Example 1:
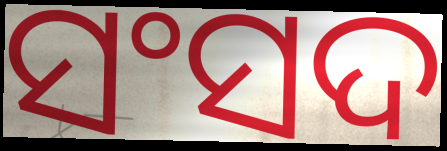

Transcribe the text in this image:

ସଂସଦ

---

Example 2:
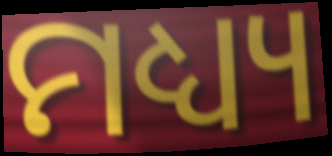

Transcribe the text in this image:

ମଧ୍ୟ୍ୟ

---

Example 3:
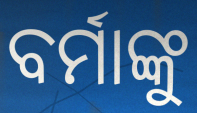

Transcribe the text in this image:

ବର୍ମାଙ୍କୁ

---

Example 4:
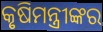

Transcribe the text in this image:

କୃଷିମନ୍ତ୍ରୀଙ୍କର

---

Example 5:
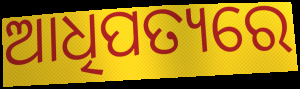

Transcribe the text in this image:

ଆଧିପତ୍ୟରେ